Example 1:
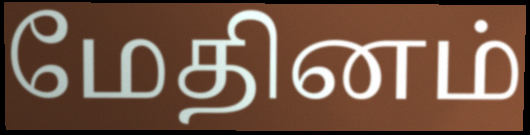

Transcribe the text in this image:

மேதினம்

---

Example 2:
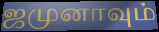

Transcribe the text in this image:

ஜமுனாவும்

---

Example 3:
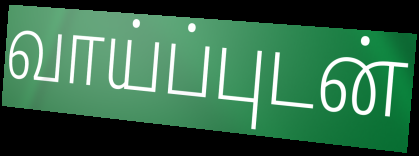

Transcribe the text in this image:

வாய்ப்புடன்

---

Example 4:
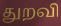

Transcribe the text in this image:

துறவி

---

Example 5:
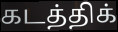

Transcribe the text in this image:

கடத்திக்